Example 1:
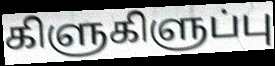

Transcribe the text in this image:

கிளுகிளுப்பு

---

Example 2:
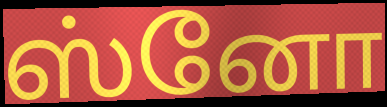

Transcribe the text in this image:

ஸ்னோ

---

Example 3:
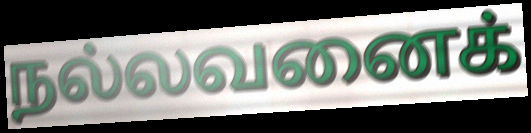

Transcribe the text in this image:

நல்லவனைக்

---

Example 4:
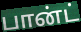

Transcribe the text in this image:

பான்ட்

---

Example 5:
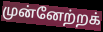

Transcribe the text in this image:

முன்னேற்றக்